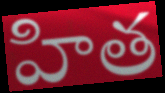
హిత